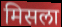
मिसला